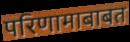
परिणामाबाबत